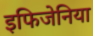
इफिजेनिया